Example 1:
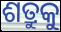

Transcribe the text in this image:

ଶତ୍ରୁକୁ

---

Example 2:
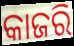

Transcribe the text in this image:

କାଜରି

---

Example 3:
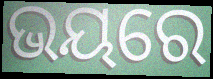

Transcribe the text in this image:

ଭୟରେ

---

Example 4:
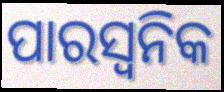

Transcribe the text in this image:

ପାରସ୍ୱନିକ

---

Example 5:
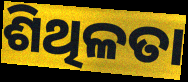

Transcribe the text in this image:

ଶିଥିଳତା